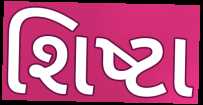
શિષ્ટા